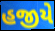
હજીયે